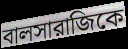
বালসারাজিকে